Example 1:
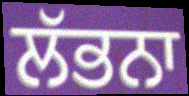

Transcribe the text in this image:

ਲੱਭਨਾ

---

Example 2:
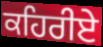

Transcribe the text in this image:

ਕਹਿਰੀਏ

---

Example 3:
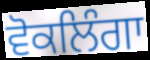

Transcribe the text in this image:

ਵੋਕਲਿੰਗਾ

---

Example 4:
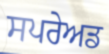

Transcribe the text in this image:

ਸਪਰੇਅਡ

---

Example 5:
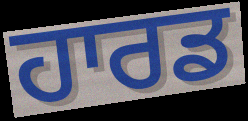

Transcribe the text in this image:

ਹਾਰਡ